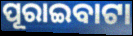
ପୂରାଇବାଟା